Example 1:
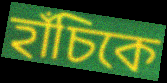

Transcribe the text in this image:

হাঁচিকে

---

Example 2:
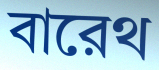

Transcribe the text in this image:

বারেথ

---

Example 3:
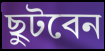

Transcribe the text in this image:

ছুটবেন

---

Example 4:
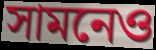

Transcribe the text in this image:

সামনেও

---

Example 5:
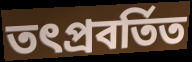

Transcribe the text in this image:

তৎপ্রবর্তিত